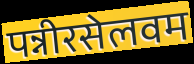
पन्नीरसेलवम